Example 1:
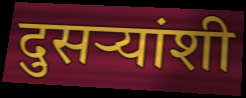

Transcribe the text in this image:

दुसर्‍यांशी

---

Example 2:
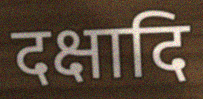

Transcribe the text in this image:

दक्षादि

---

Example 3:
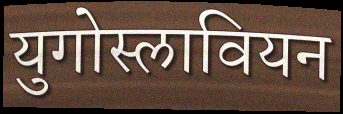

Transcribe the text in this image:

युगोस्लावियन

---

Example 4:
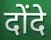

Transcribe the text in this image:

दोंदे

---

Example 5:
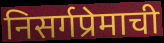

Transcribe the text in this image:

निसर्गप्रेमाची